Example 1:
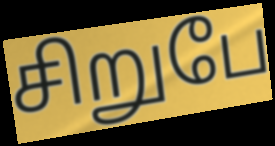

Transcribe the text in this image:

சிறுபே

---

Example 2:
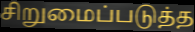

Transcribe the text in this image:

சிறுமைப்படுத்த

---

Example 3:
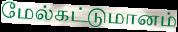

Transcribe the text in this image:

மேல்கட்டுமானம்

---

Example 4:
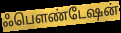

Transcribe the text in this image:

ஃபௌண்டேஷன்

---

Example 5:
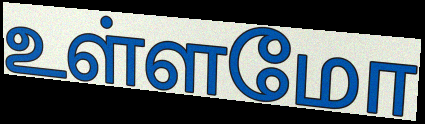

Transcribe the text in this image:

உள்ளமோ